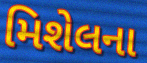
મિશેલના